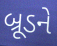
બ્રૂડને